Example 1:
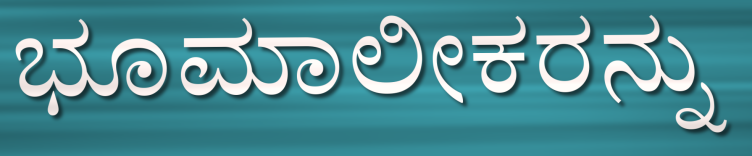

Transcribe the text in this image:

ಭೂಮಾಲೀಕರನ್ನು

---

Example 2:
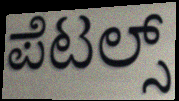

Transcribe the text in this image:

ಪೆಟಲ್ಸ್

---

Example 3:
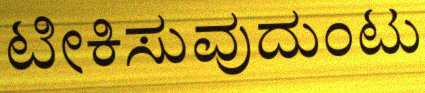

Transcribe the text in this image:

ಟೀಕಿಸುವುದುಂಟು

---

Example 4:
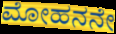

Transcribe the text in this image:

ಮೋಹನನೇ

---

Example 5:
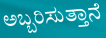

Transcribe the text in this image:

ಅಬ್ಬರಿಸುತ್ತಾನೆ